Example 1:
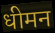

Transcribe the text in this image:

धीमन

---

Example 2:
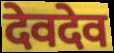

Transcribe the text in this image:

देवदेव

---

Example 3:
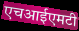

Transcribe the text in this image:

एचआईएमटी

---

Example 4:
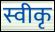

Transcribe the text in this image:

स्वीकृ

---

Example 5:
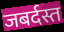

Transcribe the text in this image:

जबर्दस्त